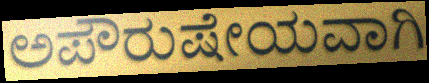
ಅಪೌರುಷೇಯವಾಗಿ